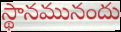
స్థానమునందు